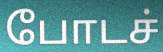
போடச்